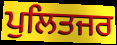
ਪੁਲਿਤਜਰ